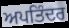
ਅਪਤਿੰਦਰ